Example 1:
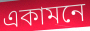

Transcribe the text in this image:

একামনে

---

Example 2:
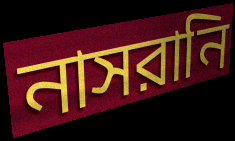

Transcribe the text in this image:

নাসরানি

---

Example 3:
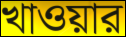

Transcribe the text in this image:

খাওয়ার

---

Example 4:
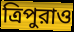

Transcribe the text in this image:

ত্রিপুরাও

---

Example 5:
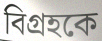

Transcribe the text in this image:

বিগ্রহকে